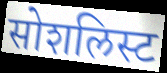
सोशलिस्ट